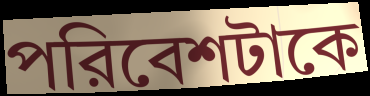
পরিবেশটাকে